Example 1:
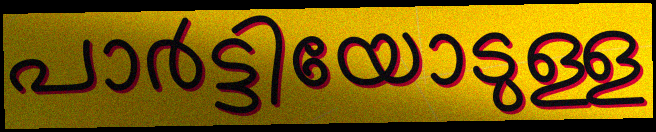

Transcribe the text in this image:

പാർട്ടിയോടുള്ള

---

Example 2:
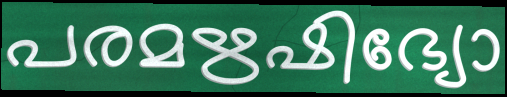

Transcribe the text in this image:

പരമഋഷിഭ്യോ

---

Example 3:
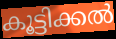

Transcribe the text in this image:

കൂട്ടിക്കൽ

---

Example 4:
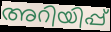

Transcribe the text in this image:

അറിയിപ്പ്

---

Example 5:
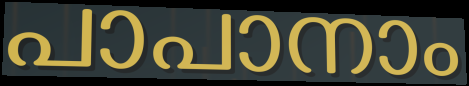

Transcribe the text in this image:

പാപാനാം